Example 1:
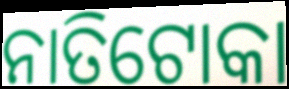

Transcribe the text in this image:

ନାତିଟୋକା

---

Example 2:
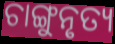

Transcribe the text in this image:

ଚାଙ୍ଗୁନୃତ୍ୟ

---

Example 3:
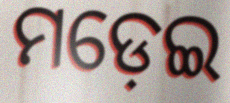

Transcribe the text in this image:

ମଡ଼େଇ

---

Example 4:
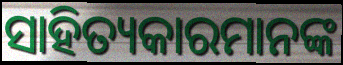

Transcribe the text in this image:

ସାହିତ୍ୟକାରମାନଙ୍କ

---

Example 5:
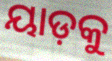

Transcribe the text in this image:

ୟାଡ଼କୁ